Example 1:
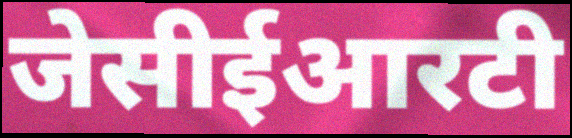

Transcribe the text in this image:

जेसीईआरटी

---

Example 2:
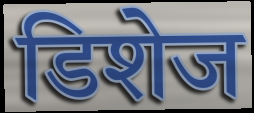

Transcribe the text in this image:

डिशेज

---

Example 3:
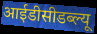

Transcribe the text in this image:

आईडीसीडब्ल्यू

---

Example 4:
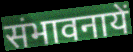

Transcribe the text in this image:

संभावनायें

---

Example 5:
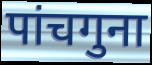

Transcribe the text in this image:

पांचगुना